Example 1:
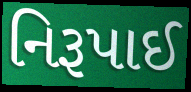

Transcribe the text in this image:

નિરૂપાઈ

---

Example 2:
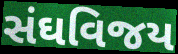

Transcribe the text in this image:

સંઘવિજય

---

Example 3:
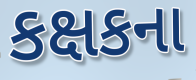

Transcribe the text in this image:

કક્ષકના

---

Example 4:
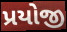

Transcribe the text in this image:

પ્રયોજી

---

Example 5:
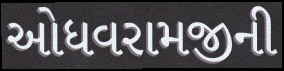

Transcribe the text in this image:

ઓધવરામજીની